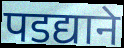
पडद्याने